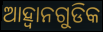
ଆହ୍ୱାନଗୁଡିକ